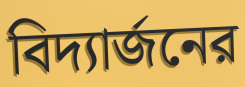
বিদ্যার্জনের